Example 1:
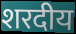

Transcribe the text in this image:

शरदीय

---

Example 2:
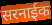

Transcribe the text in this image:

सरनाईक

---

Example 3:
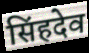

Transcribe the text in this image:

सिंहदेव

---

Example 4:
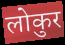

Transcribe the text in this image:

लोकुर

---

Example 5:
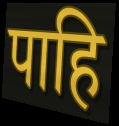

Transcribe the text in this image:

पाहि